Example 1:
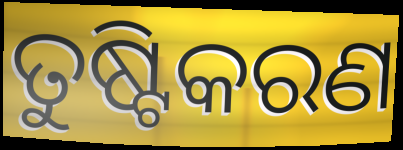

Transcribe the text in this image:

ତୁଷ୍ଟିକରଣ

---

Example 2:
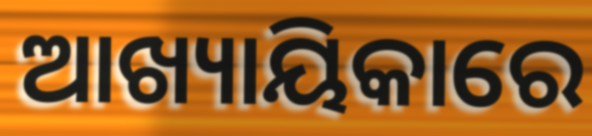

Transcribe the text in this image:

ଆଖ୍ୟାୟିକାରେ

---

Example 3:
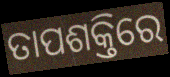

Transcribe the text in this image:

ତାପଶକ୍ତିରେ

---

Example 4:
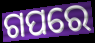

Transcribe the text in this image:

ଗପରେ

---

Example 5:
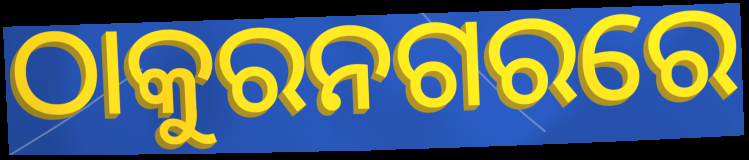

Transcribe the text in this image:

ଠାକୁରନଗରରେ